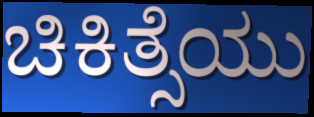
ಚಿಕಿತ್ಸೆಯು